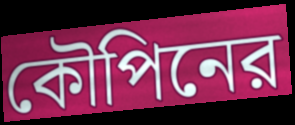
কৌপিনের